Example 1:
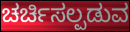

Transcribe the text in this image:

ಚರ್ಚಿಸಲ್ಪಡುವ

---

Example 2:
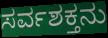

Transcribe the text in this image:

ಸರ್ವಶಕ್ತನು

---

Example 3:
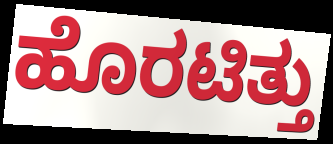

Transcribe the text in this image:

ಹೊರಟಿತ್ತು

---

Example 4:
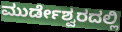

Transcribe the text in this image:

ಮುರ್ಡೇಶ್ವರದಲ್ಲಿ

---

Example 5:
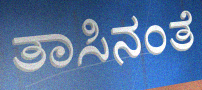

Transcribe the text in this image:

ತಾಸಿನಂತೆ